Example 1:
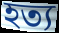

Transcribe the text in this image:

হত্য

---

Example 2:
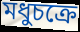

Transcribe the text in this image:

মধুচক্রে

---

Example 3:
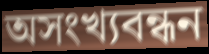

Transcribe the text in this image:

অসংখ্যবন্ধন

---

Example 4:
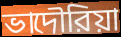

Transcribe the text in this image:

ভাদৌরিয়া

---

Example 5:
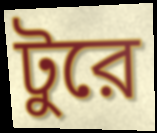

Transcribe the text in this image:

টুরে